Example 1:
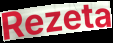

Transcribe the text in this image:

Rezeta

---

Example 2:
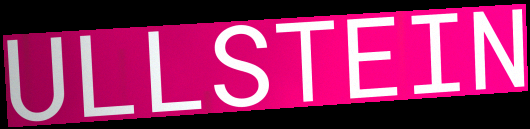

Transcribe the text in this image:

ULLSTEIN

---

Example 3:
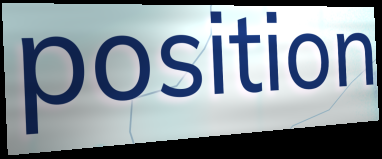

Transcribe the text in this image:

position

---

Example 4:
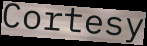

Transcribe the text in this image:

Cortesy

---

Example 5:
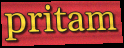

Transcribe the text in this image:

pritam